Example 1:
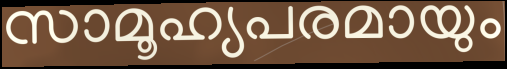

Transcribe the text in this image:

സാമൂഹ്യപരമായും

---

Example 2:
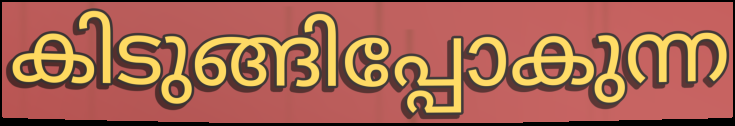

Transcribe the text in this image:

കിടുങ്ങിപ്പോകുന്ന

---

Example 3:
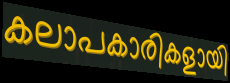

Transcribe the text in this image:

കലാപകാരികളായി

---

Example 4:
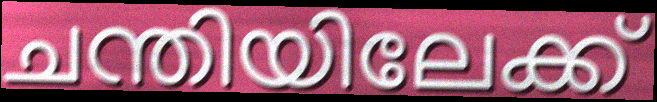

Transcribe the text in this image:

ചന്തിയിലേക്ക്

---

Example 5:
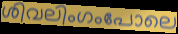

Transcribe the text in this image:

ശിവലിംഗംപോലെ